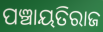
ପଞ୍ଚାୟତିରାଜ